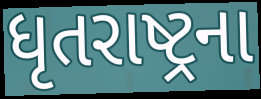
ધૃતરાષ્ટ્રના